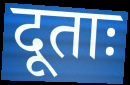
दूताः